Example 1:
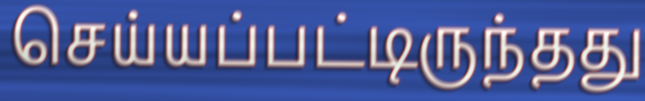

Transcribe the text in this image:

செய்யப்பட்டிருந்தது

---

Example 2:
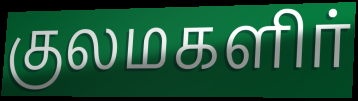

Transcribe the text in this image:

குலமகளிர்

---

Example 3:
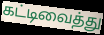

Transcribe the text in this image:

கட்டிவைத்து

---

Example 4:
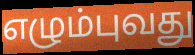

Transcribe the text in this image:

எழும்புவது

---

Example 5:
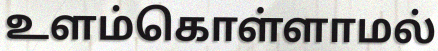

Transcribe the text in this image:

உளம்கொள்ளாமல்